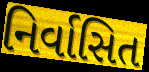
નિર્વાસિત